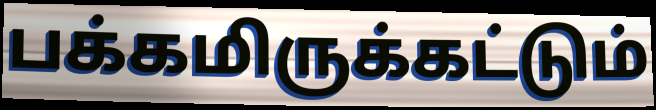
பக்கமிருக்கட்டும்